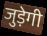
जुड़ेगी